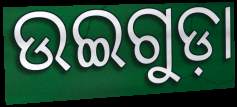
ଉଇଗୁଡ଼ା